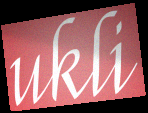
ukli